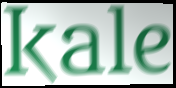
kale